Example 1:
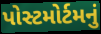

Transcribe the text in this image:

પોસ્ટમોર્ટમનું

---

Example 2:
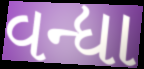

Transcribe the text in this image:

વન્દ્યા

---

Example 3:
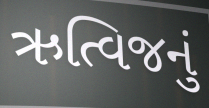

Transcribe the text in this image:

ઋત્વિજનું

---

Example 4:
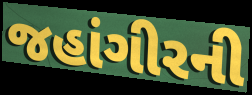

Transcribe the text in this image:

જહાંગીરની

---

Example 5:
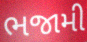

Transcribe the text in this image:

ભજામી